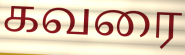
கவரை